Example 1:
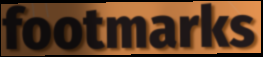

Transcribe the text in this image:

footmarks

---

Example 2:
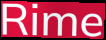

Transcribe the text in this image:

Rime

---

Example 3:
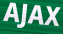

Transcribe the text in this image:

AJAX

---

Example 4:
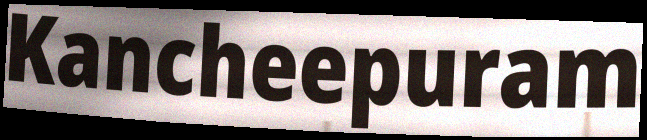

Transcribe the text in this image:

Kancheepuram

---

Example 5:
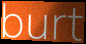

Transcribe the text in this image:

burt